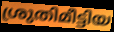
ശ്രുതിമീട്ടിയ